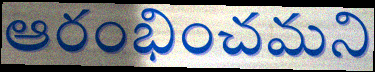
ఆరంభించమని